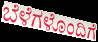
ಬೆಳೆಗಳೊಂದಿಗೆ